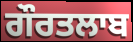
ਗੌਰਤਲਾਬ